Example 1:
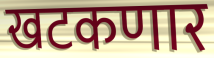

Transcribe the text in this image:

खटकणार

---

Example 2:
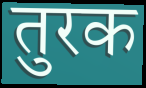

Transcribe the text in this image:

तुरक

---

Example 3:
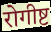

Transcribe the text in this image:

रोगीष्ट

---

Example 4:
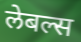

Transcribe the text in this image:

लेबल्स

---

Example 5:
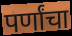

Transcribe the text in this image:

पर्णांचा